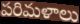
పరిమళాలు